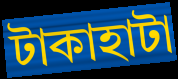
টাকাহাটা